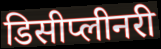
डिसीप्लीनरी